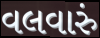
વલવારું